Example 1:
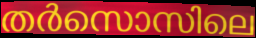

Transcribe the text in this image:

തർസൊസിലെ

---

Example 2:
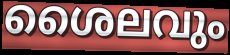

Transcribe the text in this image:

ശൈലവും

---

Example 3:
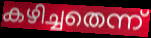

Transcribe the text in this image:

കഴിച്ചതെന്ന്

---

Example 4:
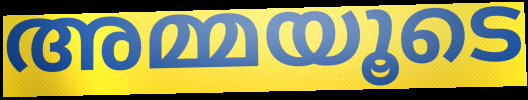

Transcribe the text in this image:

അമ്മയൂടെ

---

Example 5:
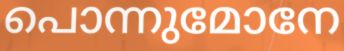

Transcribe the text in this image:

പൊന്നുമോനേ